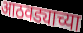
आठवड्याच्या